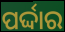
ପର୍ଦ୍ଦାର